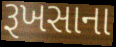
રૂખસાના